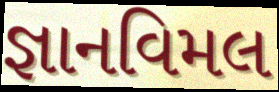
જ્ઞાનવિમલ